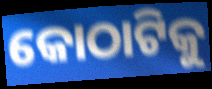
କୋଠାଟିକୁ